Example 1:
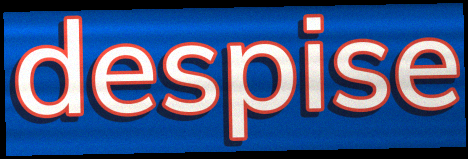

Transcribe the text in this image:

despise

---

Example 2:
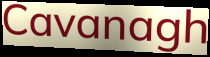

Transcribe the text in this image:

Cavanagh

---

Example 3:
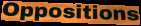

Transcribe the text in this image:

Oppositions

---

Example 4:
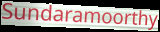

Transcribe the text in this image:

Sundaramoorthy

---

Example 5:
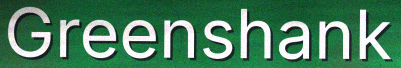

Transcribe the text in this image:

Greenshank